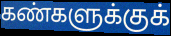
கண்களுக்குக்